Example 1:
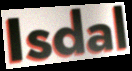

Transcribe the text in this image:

Isdal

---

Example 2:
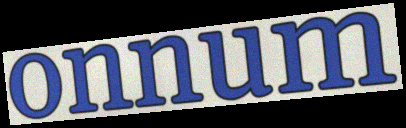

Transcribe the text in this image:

onnum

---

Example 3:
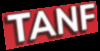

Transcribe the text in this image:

TANF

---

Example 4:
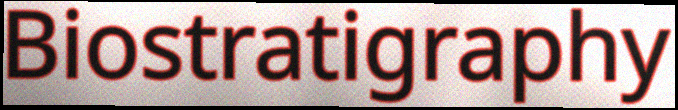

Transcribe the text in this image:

Biostratigraphy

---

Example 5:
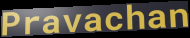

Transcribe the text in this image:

Pravachan